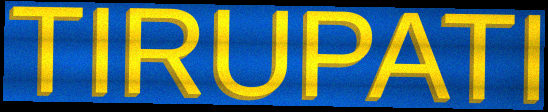
TIRUPATI